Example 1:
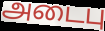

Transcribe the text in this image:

அடைபு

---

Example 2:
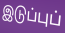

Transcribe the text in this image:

இடுப்புப்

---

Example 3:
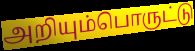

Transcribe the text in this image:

அறியும்பொருட்டு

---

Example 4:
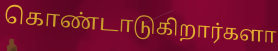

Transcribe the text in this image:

கொண்டாடுகிறார்களா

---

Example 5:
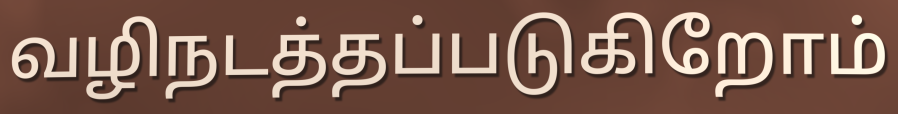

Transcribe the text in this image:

வழிநடத்தப்படுகிறோம்